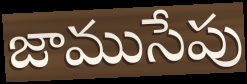
జాముసేపు